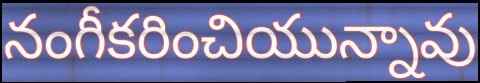
నంగీకరించియున్నావు